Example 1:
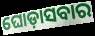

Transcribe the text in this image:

ଘୋଡ଼ାସବାର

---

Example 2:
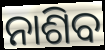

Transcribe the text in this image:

ନାଶିବ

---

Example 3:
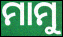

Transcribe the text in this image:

ମାମୁ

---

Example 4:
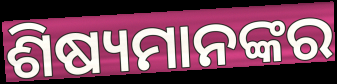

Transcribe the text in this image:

ଶିଷ୍ୟମାନଙ୍କର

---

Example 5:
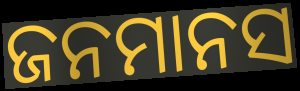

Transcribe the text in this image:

ଜନମାନସ